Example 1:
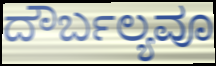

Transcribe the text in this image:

ದೌರ್ಬಲ್ಯವೂ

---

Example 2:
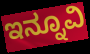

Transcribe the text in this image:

ಇನ್ನೂವಿ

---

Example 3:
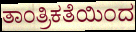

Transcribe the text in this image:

ತಾಂತ್ರಿಕತೆಯಿಂದ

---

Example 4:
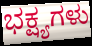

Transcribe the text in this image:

ಭಕ್ಷ್ಯಗಳು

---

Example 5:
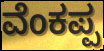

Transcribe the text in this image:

ವೆಂಕಪ್ಪ